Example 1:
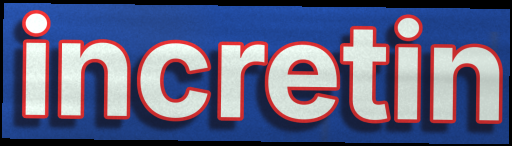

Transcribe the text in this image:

incretin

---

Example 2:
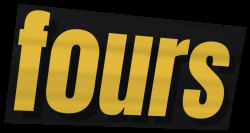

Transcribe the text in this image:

fours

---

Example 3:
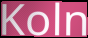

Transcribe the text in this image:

Koln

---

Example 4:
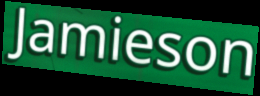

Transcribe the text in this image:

Jamieson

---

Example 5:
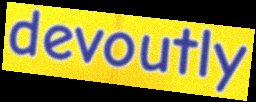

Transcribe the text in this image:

devoutly